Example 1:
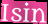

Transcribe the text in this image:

Isin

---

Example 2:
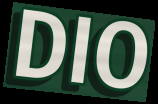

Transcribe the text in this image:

DIO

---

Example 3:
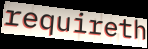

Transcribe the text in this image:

requireth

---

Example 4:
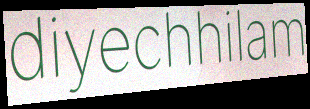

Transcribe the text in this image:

diyechhilam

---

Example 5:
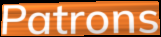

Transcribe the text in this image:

Patrons